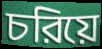
চরিয়ে